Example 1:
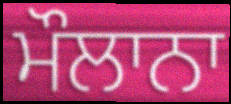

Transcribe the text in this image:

ਮੌਲਾਨਾ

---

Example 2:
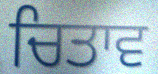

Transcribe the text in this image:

ਚਿਤਾਵ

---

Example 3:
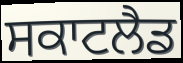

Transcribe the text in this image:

ਸਕਾਟਲੈਡ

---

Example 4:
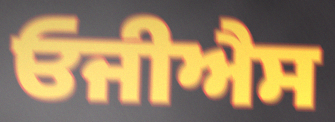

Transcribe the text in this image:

ਓਜੀਐਸ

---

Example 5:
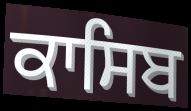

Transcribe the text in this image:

ਕਾਸਿਬ